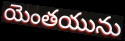
యెంతయును